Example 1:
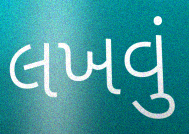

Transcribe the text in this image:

લખવું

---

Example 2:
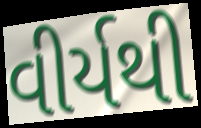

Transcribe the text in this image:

વીર્યથી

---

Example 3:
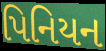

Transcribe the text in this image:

પિનિયન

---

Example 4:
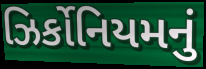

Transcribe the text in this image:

ઝિર્કોનિયમનું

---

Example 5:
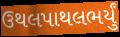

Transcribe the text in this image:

ઉથલપાથલભર્યું